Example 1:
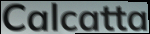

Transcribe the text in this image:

Calcatta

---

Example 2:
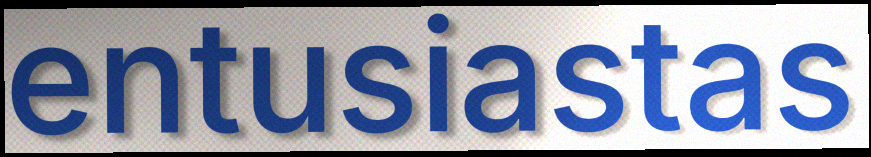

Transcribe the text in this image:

entusiastas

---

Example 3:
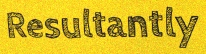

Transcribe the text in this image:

Resultantly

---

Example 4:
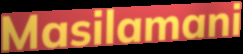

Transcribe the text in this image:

Masilamani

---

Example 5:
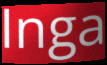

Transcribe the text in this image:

Inga